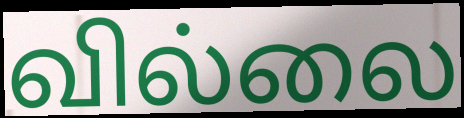
வில்லை